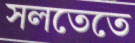
সলতেতে